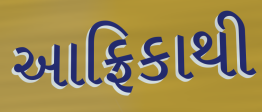
આફ્રિકાથી